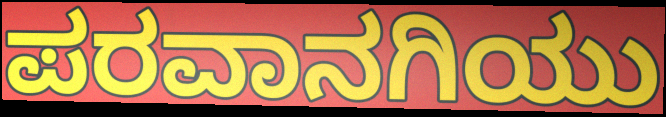
ಪರವಾನಗಿಯು